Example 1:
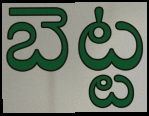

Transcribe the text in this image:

బెట్ట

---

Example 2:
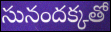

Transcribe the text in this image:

సునందక్కతో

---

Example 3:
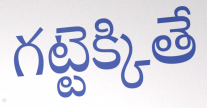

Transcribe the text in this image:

గట్టెక్కితే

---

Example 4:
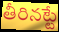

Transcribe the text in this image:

తీరినట్టే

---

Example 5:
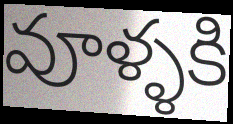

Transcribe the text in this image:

వూళ్ళకి